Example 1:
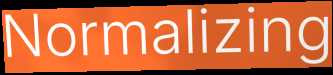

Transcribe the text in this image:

Normalizing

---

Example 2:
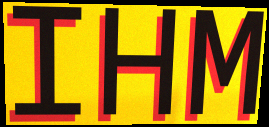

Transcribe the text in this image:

IHM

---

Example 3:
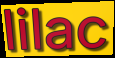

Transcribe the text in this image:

lilac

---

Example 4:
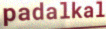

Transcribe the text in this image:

padalkal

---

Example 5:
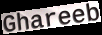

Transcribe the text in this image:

Ghareeb